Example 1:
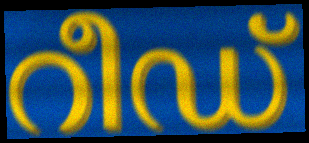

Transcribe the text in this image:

റീഡ്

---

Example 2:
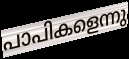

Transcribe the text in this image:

പാപികളെന്നു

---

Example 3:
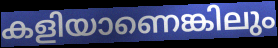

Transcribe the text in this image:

കളിയാണെങ്കിലും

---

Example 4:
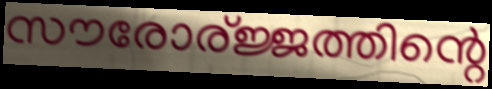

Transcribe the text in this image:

സൗരോര്ജ്ജത്തിന്റെ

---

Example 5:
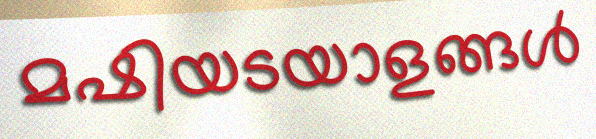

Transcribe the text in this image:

മഷിയടയാളങ്ങൾ